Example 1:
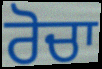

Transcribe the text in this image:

ਰੋਚਾ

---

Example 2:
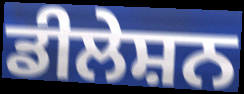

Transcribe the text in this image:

ਡੀਲੇਸ਼ਨ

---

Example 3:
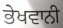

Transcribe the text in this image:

ਭੇਖਵਾਨੀ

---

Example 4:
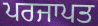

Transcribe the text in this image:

ਪਰਜਾਪਤ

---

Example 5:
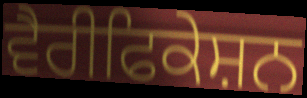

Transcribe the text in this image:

ਵੈਰੀਫਿਕੇਸ਼ਨ